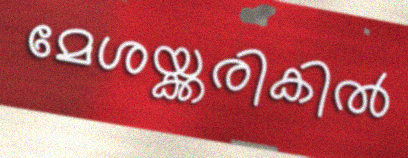
മേശയ്ക്കരികിൽ